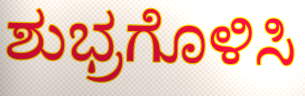
ಶುಭ್ರಗೊಳಿಸಿ